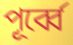
পূর্ব্বে